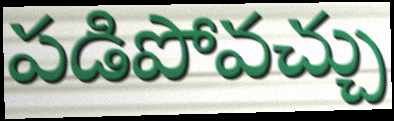
పడిపోవచ్చు